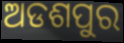
ଅଡଶପୁର